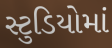
સ્ટુડિયોમાં